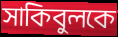
সাকিবুলকে